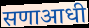
सणाआधी